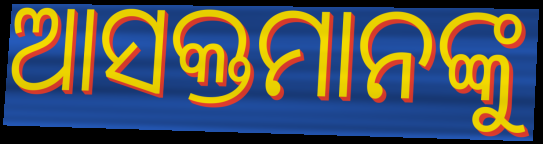
ଆସକ୍ତମାନଙ୍କୁ